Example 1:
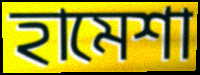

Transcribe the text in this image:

হামেশা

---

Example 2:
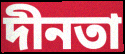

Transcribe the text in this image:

দীনতা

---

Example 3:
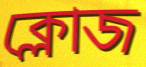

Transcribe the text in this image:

ক্লোজ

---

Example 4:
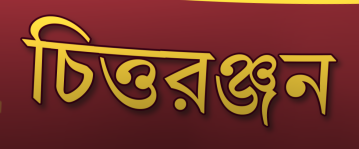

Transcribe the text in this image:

চিত্তরঞ্জন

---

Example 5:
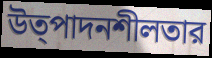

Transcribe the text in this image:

উত্পাদনশীলতার